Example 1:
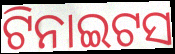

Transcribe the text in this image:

ଟିନାଇଟସ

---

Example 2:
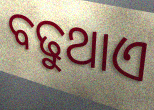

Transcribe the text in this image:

ବଢୁଥାଏ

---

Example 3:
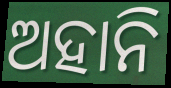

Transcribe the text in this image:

ଅହାନି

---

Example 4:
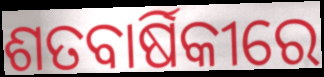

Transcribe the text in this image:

ଶତବାର୍ଷିକୀରେ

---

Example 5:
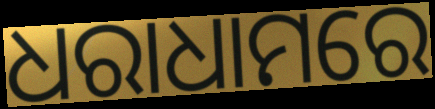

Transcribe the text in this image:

ଧରାଧାମରେ